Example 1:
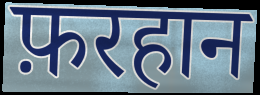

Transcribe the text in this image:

फ़रहान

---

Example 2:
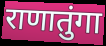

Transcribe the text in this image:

राणातुंगा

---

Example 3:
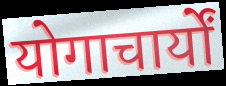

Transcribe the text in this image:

योगाचार्यों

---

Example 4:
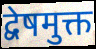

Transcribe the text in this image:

द्वेषमुक्त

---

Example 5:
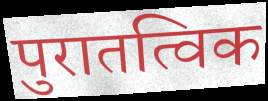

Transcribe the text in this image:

पुरातत्विक